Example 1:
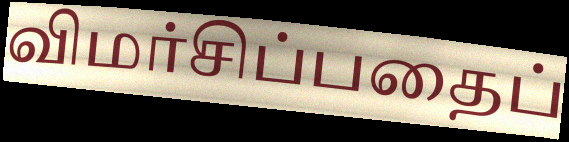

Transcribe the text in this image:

விமர்சிப்பதைப்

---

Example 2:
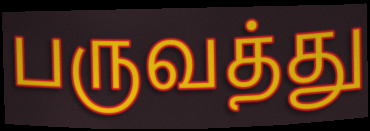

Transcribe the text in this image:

பருவத்து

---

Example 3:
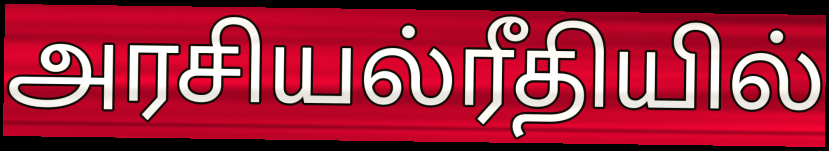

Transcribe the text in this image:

அரசியல்ரீதியில்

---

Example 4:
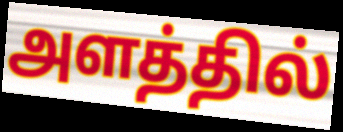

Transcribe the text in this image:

அளத்தில்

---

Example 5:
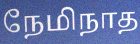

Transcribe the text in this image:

நேமிநாத